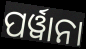
ପର୍ୱାନା